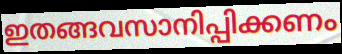
ഇതങ്ങവസാനിപ്പിക്കണം